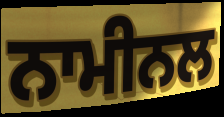
ਨਾਮੀਨਲ